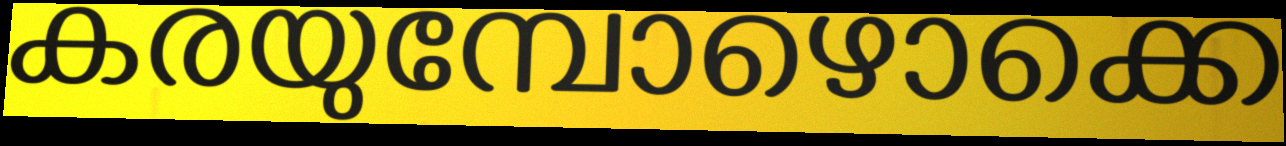
കരയുമ്പോഴൊക്കെ